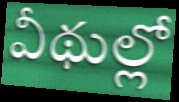
వీథుల్లో